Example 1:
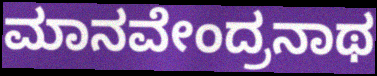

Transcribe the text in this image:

ಮಾನವೇಂದ್ರನಾಥ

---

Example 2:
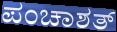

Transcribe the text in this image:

ಪಂಚಾಶತ್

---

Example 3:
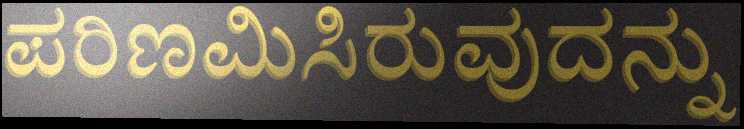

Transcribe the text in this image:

ಪರಿಣಮಿಸಿರುವುದನ್ನು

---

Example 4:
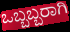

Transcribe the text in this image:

ಒಬ್ಬಬ್ಬರಾಗಿ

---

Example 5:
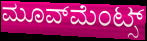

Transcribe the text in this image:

ಮೂವ್‌ಮೆಂಟ್ಸ್